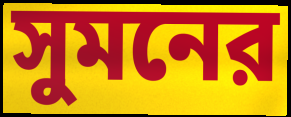
সুমনের